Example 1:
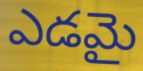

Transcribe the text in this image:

ఎడమై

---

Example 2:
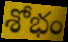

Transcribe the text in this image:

శోభం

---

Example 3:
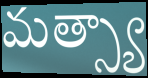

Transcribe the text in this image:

మత్స్యా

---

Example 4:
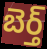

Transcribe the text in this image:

బెర్త్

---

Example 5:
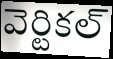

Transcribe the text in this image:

వెర్టికల్